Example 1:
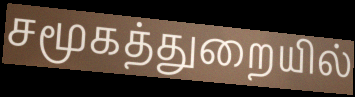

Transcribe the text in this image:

சமூகத்துறையில்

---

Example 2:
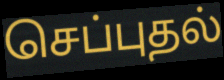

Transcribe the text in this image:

செப்புதல்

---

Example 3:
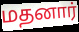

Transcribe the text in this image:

மதனார்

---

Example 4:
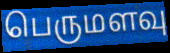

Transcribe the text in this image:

பெருமளவு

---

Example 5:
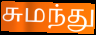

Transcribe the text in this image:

சுமந்து